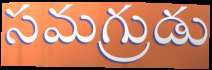
సమగ్రుడు